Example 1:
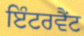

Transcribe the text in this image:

ਇੰਟਰਵੈਂਟ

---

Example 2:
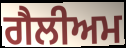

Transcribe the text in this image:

ਗੈਲੀਅਮ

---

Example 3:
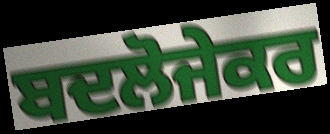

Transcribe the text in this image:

ਬਦਲੋਜੇਕਰ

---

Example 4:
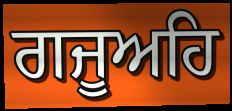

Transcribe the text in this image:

ਗਜੂਅਹਿ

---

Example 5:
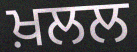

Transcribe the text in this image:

ਖ਼ਲਲ